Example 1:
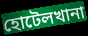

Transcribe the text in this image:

হোটেলখানা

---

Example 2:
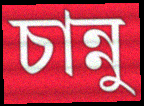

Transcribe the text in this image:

চান্নু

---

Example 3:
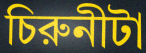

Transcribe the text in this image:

চিরুনীটা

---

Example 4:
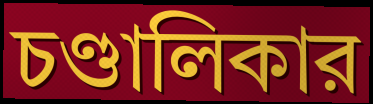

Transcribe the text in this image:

চণ্ডালিকার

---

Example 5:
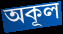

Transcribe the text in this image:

অকূল